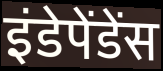
इंडेपेंडेंस